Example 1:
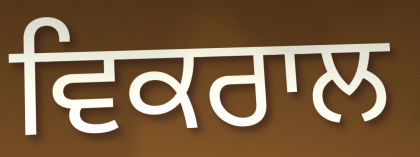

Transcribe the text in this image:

ਵਿਕਰਾਲ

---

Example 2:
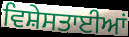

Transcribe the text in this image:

ਵਿਸ਼ੇਸਤਾਈਆਂ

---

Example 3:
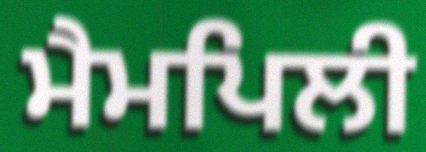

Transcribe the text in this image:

ਮੈਮਪਿਲੀ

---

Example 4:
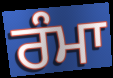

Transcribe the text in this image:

ਰੰਮਾ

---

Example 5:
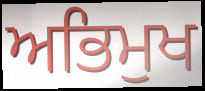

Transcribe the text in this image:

ਅਭਿਮੁਖ